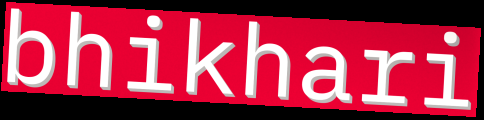
bhikhari